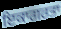
ਇਕਾਗਰਤਾ